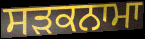
ਸਡ਼ਕਨਾਮਾ